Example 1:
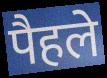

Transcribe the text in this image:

पैहले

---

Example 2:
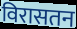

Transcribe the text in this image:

विरासतन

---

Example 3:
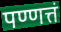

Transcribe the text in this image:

पण्णत्तं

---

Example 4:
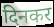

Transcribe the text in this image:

दिनकर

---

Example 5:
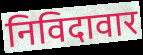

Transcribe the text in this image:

निविदावार